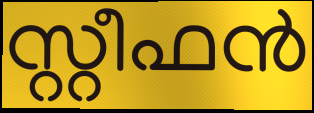
സ്റ്റീഫൻ